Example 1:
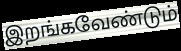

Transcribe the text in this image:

இறங்கவேண்டும்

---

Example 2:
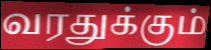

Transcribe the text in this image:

வரதுக்கும்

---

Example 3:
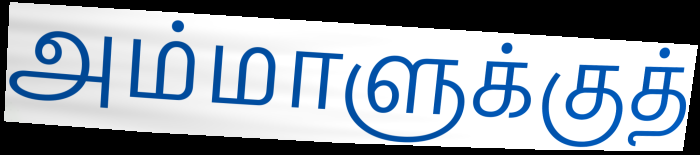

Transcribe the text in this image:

அம்மாளுக்குத்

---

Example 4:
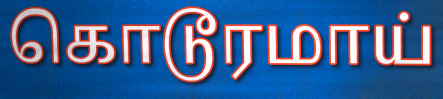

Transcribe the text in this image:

கொடூரமாய்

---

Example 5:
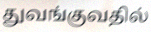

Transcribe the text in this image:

துவங்குவதில்